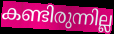
കണ്ടിരുന്നില്ല